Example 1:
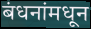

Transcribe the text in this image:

बंधनांमधून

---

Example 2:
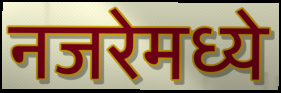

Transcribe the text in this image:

नजरेमध्ये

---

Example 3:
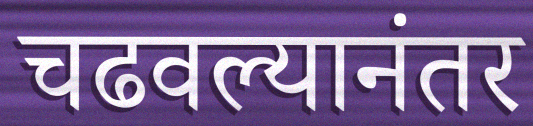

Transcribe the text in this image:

चढवल्यानंतर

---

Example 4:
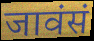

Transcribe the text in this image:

जावंसं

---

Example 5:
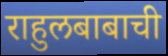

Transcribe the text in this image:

राहुलबाबाची